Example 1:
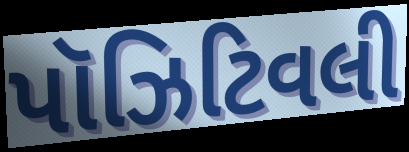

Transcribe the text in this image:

પૉઝિટિવલી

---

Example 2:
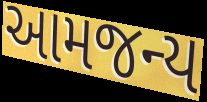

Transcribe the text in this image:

આમજન્ય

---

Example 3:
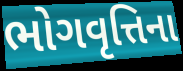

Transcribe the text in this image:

ભોગવૃત્તિના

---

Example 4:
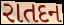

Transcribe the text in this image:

રાતદન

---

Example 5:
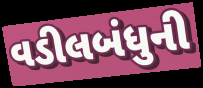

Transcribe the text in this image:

વડીલબંધુની